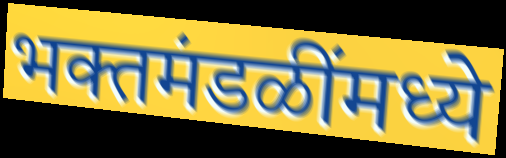
भक्तमंडळींमध्ये